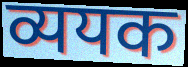
व्ययक